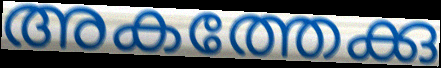
അകത്തേക്കു